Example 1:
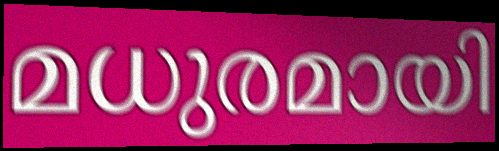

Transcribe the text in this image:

മധുരമായി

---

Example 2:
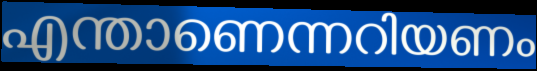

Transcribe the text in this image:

എന്താണെന്നറിയണം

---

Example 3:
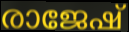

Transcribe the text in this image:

രാജേഷ്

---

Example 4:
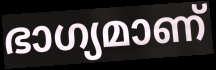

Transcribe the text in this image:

ഭാഗ്യമാണ്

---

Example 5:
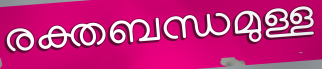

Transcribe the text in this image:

രക്തബന്ധമുള്ള